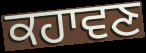
ਕਹਾਵਣ